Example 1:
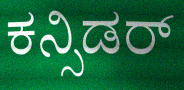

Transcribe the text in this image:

ಕನ್ಸಿಡರ್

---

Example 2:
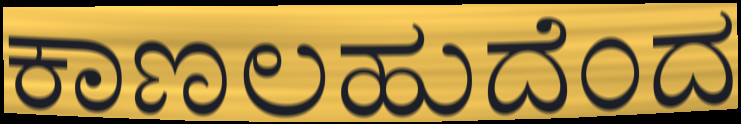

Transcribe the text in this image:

ಕಾಣಲಹುದೆಂದ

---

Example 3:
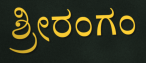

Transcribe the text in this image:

ಶ್ರೀರಂಗಂ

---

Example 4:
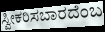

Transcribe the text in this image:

ಸ್ವೀಕರಿಸಬಾರದೆಂಬ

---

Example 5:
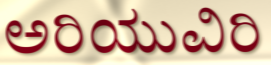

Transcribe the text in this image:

ಅರಿಯುವಿರಿ